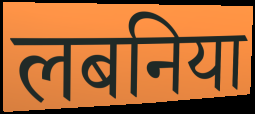
लबनिया